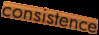
consistence